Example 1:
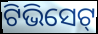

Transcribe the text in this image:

ଟିଭିସେଟ୍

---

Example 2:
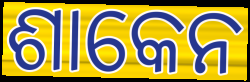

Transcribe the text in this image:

ଶାକେନ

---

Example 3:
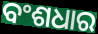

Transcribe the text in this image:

ବଂଶଧାର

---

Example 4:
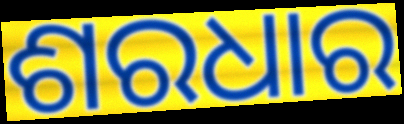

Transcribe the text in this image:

ଶରଧାର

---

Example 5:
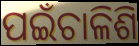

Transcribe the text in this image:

ପଇଁଚାଳିଶି